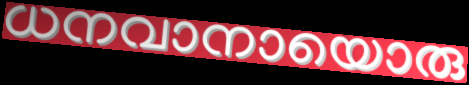
ധനവാനായൊരു